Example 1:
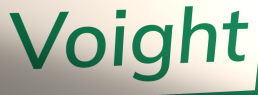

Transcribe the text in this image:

Voight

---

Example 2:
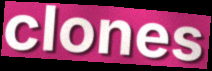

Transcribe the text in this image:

clones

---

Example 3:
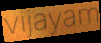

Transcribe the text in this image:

vijayam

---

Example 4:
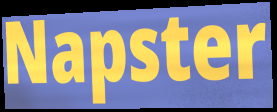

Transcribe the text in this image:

Napster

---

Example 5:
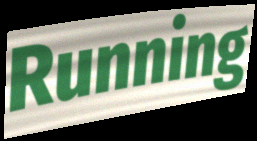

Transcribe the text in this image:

Running